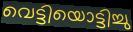
വെട്ടിയൊട്ടിച്ചു